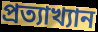
প্রত্যাখ্যান